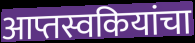
आप्तस्वकियांचा